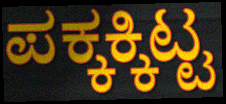
ಪಕ್ಕಕ್ಕಿಟ್ಟ